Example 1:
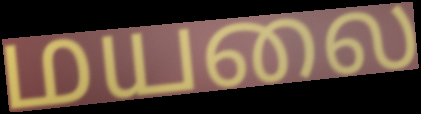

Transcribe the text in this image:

மயலை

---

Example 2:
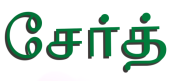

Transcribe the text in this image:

சேர்த்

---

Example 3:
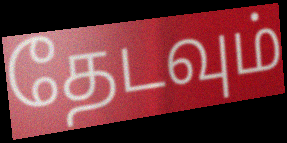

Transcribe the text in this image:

தேடவும்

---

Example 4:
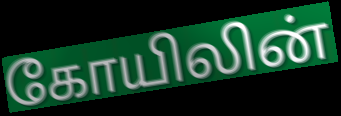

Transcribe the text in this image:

கோயிலின்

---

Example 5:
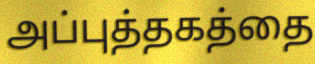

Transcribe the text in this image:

அப்புத்தகத்தை